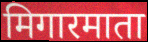
मिगारमाता